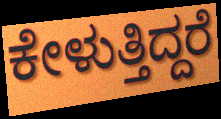
ಕೇಳುತ್ತಿದ್ದರೆ